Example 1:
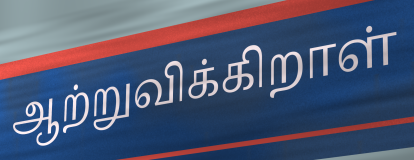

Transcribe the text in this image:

ஆற்றுவிக்கிறாள்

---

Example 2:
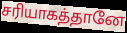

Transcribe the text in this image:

சரியாகத்தானே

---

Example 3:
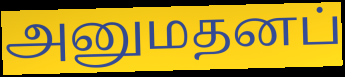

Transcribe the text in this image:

அனுமதனப்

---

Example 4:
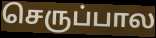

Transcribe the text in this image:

செருப்பால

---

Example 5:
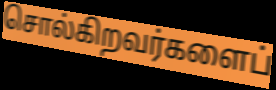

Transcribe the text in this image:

சொல்கிறவர்களைப்